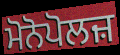
ਮੋਨੋਪੋਲਜ਼